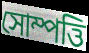
সোম্পত্তি